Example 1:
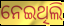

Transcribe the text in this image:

ନେଇଥିଲି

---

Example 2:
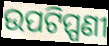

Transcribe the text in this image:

ଉପଟିପ୍ପଣୀ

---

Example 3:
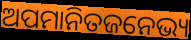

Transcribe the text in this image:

ଅପମାନିତଜନେଭ୍ୟ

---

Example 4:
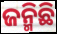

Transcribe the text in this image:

ଜନ୍ମିଛି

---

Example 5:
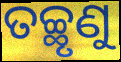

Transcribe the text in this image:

ତଚ୍ଛୃଣୁ